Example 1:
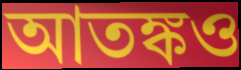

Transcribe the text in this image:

আতঙ্কও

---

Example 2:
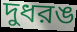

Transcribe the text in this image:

দুধরঙ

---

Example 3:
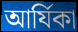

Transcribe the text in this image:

আর্যিকা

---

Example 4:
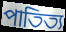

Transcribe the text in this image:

পাতিত্য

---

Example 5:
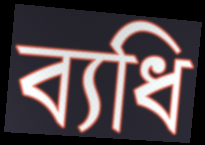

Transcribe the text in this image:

ব্যধি